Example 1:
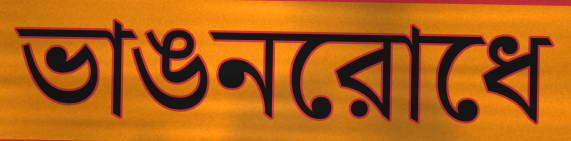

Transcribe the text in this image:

ভাঙনরোধে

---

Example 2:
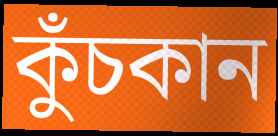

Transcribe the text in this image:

কুঁচকান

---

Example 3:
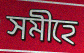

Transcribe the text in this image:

সমীহে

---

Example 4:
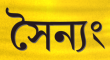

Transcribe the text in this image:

সৈন্যং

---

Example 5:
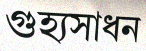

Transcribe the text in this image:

গুহ্যসাধন